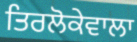
ਤਿਰਲੋਕੇਵਾਲਾ